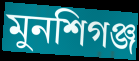
মুনশিগঞ্জ